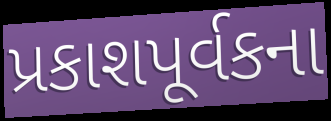
પ્રકાશપૂર્વકના